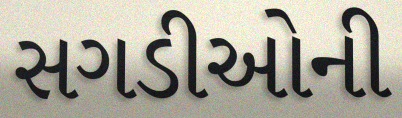
સગડીઓની